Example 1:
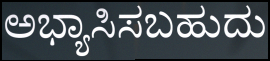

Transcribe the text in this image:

ಅಭ್ಯಾಸಿಸಬಹುದು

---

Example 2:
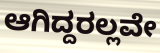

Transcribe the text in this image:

ಆಗಿದ್ದರಲ್ಲವೇ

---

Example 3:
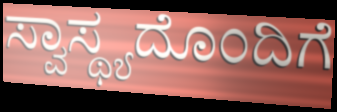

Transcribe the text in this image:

ಸ್ವಾಸ್ಥ್ಯದೊಂದಿಗೆ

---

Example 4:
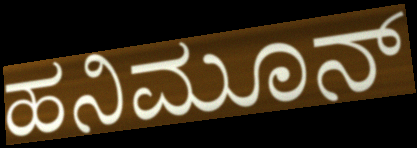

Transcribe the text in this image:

ಹನಿಮೂನ್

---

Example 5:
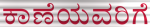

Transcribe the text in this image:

ಕಾಣೆಯವರಿಗೆ